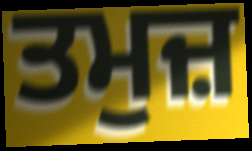
ਤਮੁਜ਼